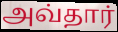
அவ்தார்